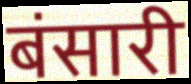
बंसारी